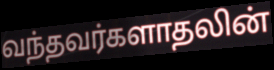
வந்தவர்களாதலின்